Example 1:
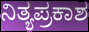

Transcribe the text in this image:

ನಿತ್ಯಪ್ರಕಾಶ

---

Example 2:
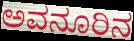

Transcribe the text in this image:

ಅವನೂರಿನ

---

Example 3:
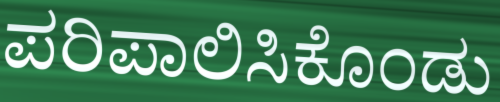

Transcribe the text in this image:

ಪರಿಪಾಲಿಸಿಕೊಂಡು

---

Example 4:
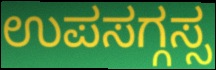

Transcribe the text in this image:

ಉಪಸಗ್ಗಸ್ಸ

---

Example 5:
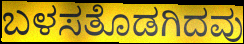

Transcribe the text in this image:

ಬಳಸತೊಡಗಿದವು